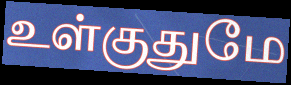
உள்குதுமே